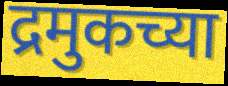
द्रमुकच्या